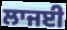
ਲਾਜਈ